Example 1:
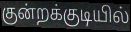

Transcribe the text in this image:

குன்றக்குடியில்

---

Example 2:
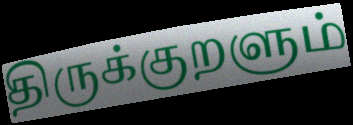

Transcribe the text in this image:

திருக்குறளும்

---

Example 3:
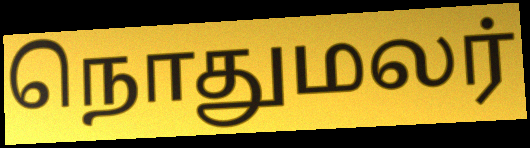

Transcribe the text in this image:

நொதுமலர்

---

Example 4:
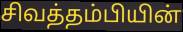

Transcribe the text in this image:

சிவத்தம்பியின்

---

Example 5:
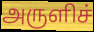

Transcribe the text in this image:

அருளிச்